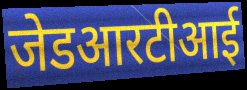
जेडआरटीआई